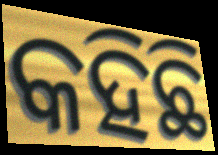
କହିଛି